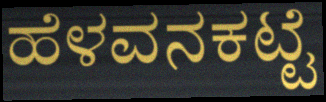
ಹೆಳವನಕಟ್ಟೆ